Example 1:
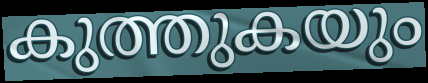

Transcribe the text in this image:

കുത്തുകയും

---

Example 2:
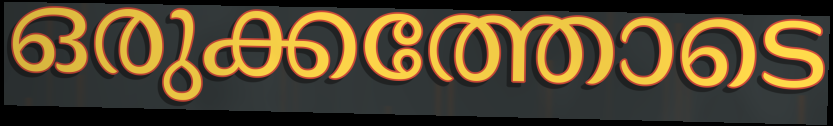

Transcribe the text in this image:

ഒരുക്കത്തോടെ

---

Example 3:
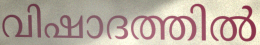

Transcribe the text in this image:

വിഷാദത്തിൽ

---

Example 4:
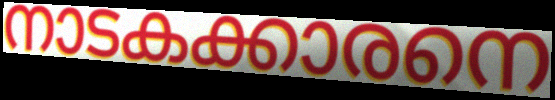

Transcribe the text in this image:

നാടകക്കാരനെ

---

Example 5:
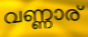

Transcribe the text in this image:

വണ്ണാര്